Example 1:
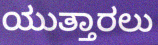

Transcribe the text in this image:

ಯುತ್ತಾರಲು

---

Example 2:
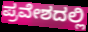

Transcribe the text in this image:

ಪ್ರವೇಶದಲ್ಲಿ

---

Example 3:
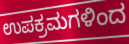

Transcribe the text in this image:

ಉಪಕ್ರಮಗಳಿಂದ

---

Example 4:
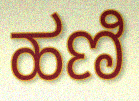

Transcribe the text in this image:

ಹಣಿ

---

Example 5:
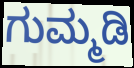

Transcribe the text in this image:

ಗುಮ್ಮಡಿ